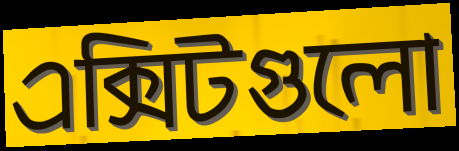
এক্সিটগুলো